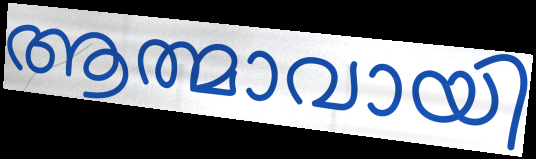
ആത്മാവായി